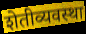
शेतीव्यवस्था